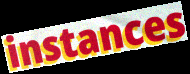
instances